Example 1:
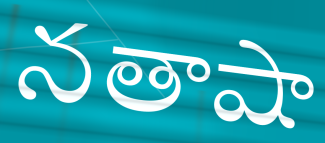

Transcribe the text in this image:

నతాషా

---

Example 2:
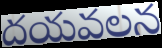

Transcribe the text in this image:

దయవలన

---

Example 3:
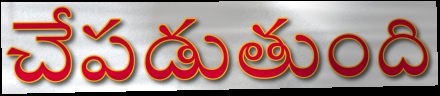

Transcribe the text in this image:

చేపడుతుంది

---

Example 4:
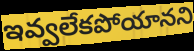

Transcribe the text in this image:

ఇవ్వలేకపోయానని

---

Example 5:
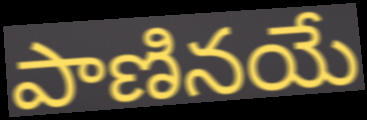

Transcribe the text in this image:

పాణినయే